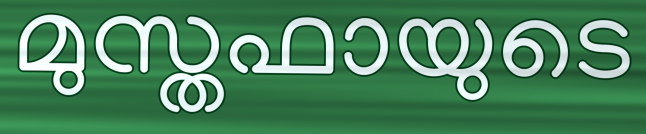
മുസ്തഫായുടെ